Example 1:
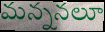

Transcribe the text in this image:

మన్ననలూ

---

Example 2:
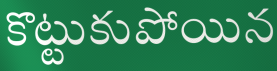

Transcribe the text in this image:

కొట్టుకుపోయిన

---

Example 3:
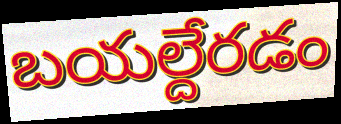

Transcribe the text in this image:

బయల్దేరడం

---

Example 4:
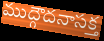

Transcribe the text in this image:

ముద్గౌదనాసక్త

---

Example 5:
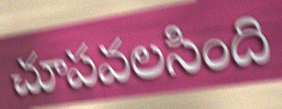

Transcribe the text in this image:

చూపవలసింది